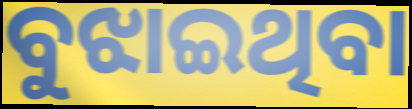
ବୁଝାଇଥିବା